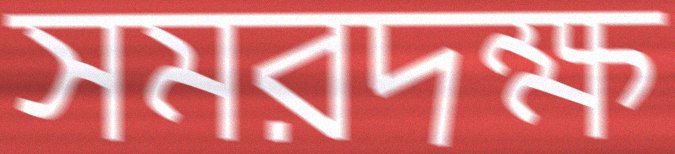
সমরদক্ষ